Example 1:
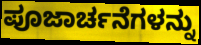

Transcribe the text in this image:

ಪೂಜಾರ್ಚನೆಗಳನ್ನು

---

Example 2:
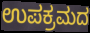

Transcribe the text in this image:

ಉಪಕ್ರಮದ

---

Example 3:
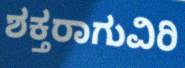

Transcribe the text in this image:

ಶಕ್ತರಾಗುವಿರಿ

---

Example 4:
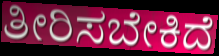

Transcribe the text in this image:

ತೀರಿಸಬೇಕಿದೆ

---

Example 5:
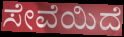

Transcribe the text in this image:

ಸೇವೆಯಿದೆ